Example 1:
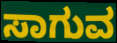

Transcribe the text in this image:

ಸಾಗುವ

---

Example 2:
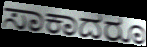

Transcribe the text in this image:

ಸಾಕಾದರೂ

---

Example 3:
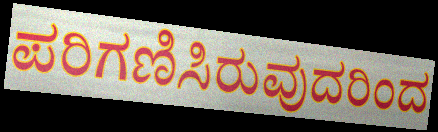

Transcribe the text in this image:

ಪರಿಗಣಿಸಿರುವುದರಿಂದ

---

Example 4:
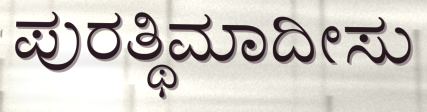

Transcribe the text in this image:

ಪುರತ್ಥಿಮಾದೀಸು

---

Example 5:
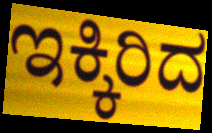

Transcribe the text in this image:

ಇಕ್ಕಿರಿದ